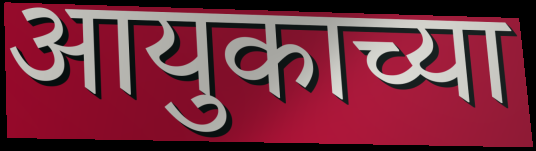
आयुकाच्या